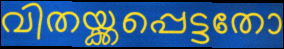
വിതയ്ക്കപ്പെട്ടതോ